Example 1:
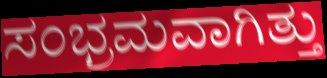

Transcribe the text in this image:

ಸಂಭ್ರಮವಾಗಿತ್ತು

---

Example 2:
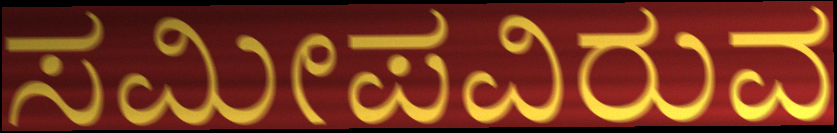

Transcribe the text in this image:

ಸಮೀಪವಿರುವ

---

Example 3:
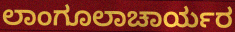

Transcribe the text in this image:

ಲಾಂಗೂಲಾಚಾರ್ಯರ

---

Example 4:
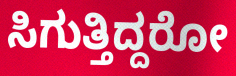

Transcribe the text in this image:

ಸಿಗುತ್ತಿದ್ದರೋ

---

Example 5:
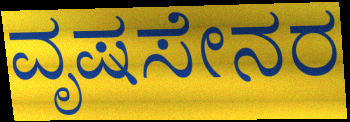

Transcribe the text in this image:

ವೃಷಸೇನರ